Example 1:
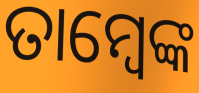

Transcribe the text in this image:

ତାମ୍ବେଙ୍କ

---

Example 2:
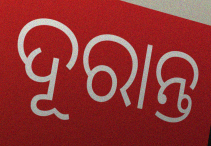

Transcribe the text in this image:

ଦୂରାନ୍ତ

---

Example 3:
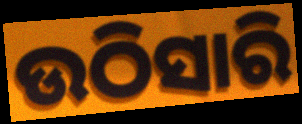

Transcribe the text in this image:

ଉଠିସାରି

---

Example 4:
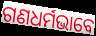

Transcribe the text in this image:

ଗଣଧର୍ମଭାବେ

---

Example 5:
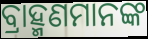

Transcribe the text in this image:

ବ୍ରାହ୍ମଣମାନଙ୍କ